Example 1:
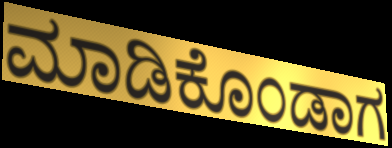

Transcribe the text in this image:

ಮಾಡಿಕೊಂಡಾಗ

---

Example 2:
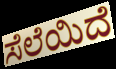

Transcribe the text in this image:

ಸೆಲೆಯಿದೆ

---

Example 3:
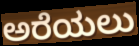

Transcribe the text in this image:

ಅರೆಯಲು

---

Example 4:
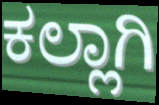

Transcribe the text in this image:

ಕಲ್ಲಾಗಿ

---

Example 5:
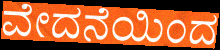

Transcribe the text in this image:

ವೇದನೆಯಿಂದ